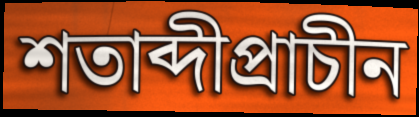
শতাব্দীপ্রাচীন